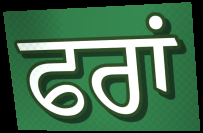
ਫਰਾਂ